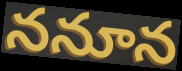
ననూన